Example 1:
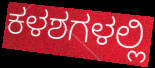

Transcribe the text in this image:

ಕಳಶಗಳಲ್ಲಿ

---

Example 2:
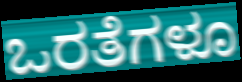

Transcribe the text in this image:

ಒರತೆಗಳೂ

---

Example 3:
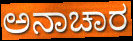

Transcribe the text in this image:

ಅನಾಚಾರ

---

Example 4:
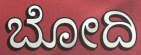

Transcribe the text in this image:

ಬೋದಿ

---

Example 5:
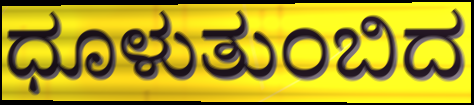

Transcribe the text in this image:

ಧೂಳುತುಂಬಿದ